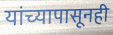
यांच्यापासूनही